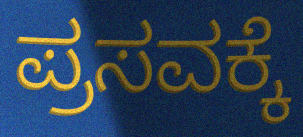
ಪ್ರಸವಕ್ಕೆ